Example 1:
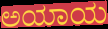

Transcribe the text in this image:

ಅಯಾಯ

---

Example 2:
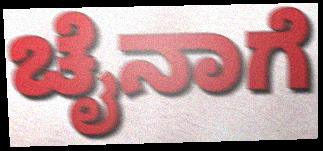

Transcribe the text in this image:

ಚೈನಾಗೆ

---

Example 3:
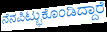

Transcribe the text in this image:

ನೆನಪಿಟ್ಟುಕೊಂಡಿದ್ದಾರೆ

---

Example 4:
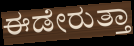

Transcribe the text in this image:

ಈಡೇರುತ್ತಾ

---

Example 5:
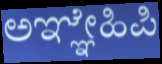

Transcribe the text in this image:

ಅಞ್ಞೇಹಿಪಿ